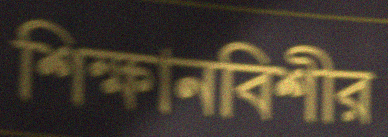
শিক্ষানবিশীর